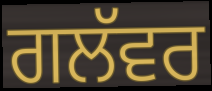
ਗਲੱਵਰ